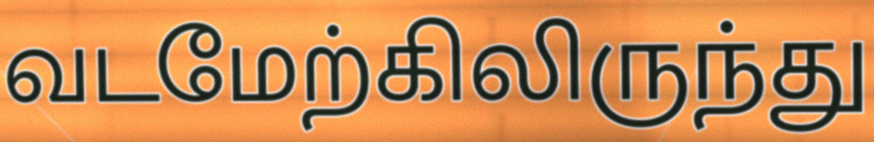
வடமேற்கிலிருந்து